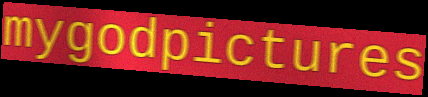
mygodpictures